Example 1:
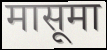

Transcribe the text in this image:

मासूमा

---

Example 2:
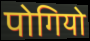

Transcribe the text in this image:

पोगियो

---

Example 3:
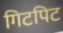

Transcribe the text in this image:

गिटपिट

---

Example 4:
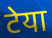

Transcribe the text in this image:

टेया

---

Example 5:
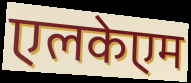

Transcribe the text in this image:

एलकेएम